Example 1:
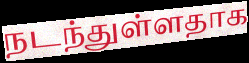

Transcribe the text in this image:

நடந்துள்ளதாக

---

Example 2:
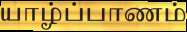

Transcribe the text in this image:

யாழ்ப்பாணம்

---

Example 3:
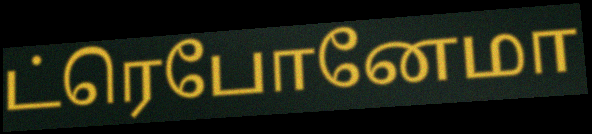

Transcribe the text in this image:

ட்ரெபோனேமா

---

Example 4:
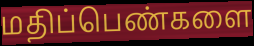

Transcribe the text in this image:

மதிப்பெண்களை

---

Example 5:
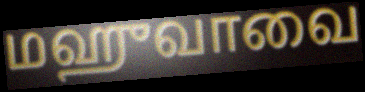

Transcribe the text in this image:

மஹுவாவை